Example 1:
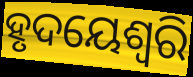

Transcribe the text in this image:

ହୃଦୟେଶ୍ଵରି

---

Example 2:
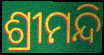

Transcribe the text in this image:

ଶ୍ରୀମନ୍ଦି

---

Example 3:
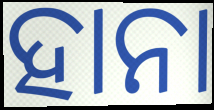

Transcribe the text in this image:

ହାନା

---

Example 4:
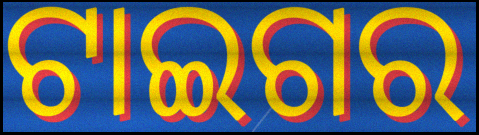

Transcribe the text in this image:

ଟାଇଗର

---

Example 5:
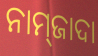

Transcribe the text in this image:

ନାମ୍‌ଜାଦା